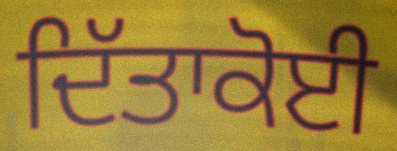
ਦਿੱਤਾਕੋਈ